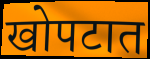
खोपटात